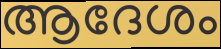
ആദേശം